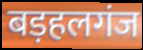
बड़हलगंज